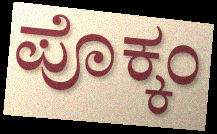
ಪೊಕ್ಕಂ